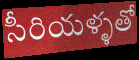
సీరియళ్ళతో